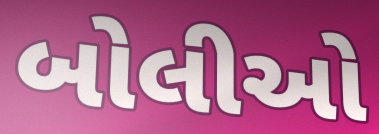
બોલીઓ